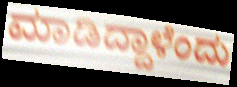
ಮಾಡಿದ್ದಾಳೆಂದು